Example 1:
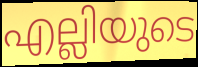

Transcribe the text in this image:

എല്ലിയുടെ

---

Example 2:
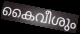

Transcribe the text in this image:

കൈവീശും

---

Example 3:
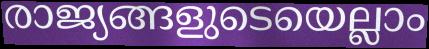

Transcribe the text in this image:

രാജ്യങ്ങളുടെയെല്ലാം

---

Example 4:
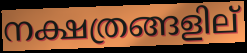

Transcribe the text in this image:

നക്ഷത്രങ്ങളില്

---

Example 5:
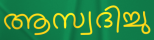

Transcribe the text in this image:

ആസ്വദിച്ചു